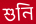
শুনি